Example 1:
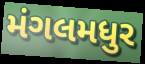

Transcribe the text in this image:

મંગલમધુર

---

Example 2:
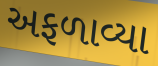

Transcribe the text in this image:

અફળાવ્યા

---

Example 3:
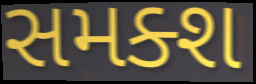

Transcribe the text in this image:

સમક્શ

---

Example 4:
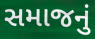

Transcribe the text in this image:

સમાજનું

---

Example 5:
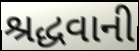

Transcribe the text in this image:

શ્રદ્ધવાની